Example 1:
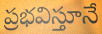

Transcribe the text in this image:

ప్రభవిస్తూనే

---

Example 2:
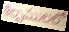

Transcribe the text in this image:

శిల్పములలో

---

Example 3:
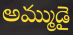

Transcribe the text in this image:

అమ్ముడై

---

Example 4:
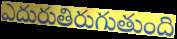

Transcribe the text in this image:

ఎదురుతిరుగుతుంది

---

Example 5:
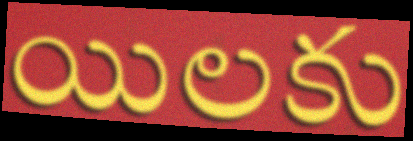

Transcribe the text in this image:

యిలకు